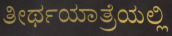
ತೀರ್ಥಯಾತ್ರೆಯಲ್ಲಿ